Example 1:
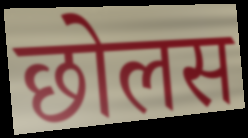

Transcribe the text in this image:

छोलस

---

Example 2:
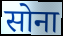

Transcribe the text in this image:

सोना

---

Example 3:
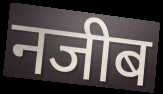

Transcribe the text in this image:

नजीब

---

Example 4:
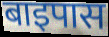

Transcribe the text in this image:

बाइपास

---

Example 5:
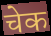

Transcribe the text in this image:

चेक